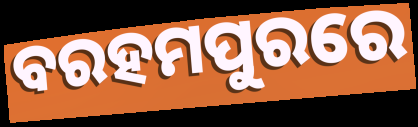
ବରହମପୁରରେ